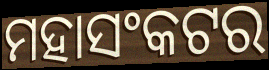
ମହାସଂକଟର